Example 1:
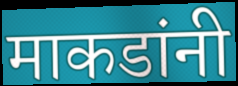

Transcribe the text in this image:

माकडांनी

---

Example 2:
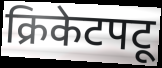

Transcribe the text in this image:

क्रिकेटपटू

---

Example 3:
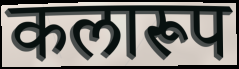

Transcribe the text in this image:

कलारूप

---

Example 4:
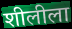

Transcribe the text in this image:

शीलीला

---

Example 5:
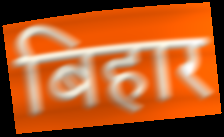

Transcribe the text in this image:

बिहार